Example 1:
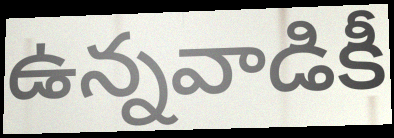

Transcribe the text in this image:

ఉన్నవాడికీ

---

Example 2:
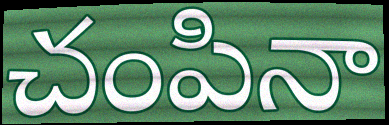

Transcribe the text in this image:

చంపినా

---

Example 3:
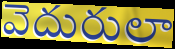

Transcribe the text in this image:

వెదురులా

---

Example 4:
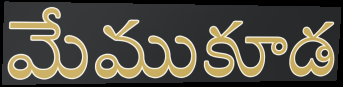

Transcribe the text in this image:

మేముకూడ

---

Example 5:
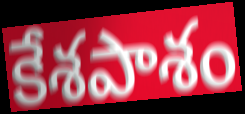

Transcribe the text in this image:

కేశపాశం